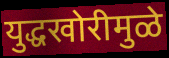
युद्धखोरीमुळे